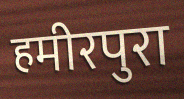
हमीरपुरा